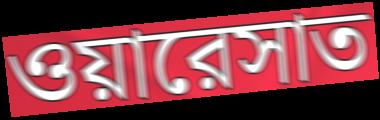
ওয়ারেসাত